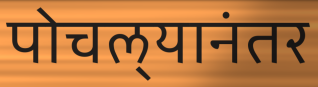
पोचल्यानंतर